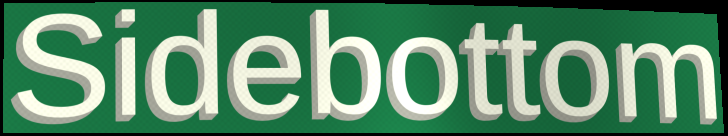
Sidebottom